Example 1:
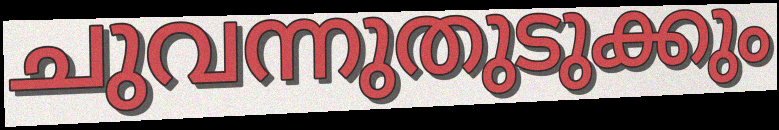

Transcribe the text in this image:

ചുവന്നുതുടുക്കും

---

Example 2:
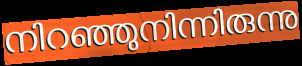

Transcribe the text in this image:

നിറഞ്ഞുനിന്നിരുന്നു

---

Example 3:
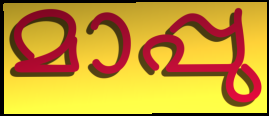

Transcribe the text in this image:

മാപ്പു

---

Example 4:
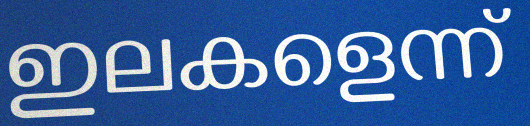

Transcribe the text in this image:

ഇലകളെന്ന്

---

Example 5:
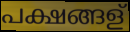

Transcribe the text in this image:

പക്ഷങ്ങള്